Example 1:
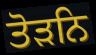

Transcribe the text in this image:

ਤੋੜਨਿ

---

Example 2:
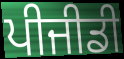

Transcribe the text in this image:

ਪੀਜੀਡੀ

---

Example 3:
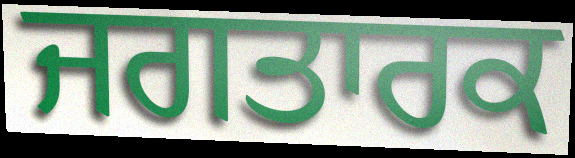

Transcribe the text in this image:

ਜਗਤਾਰਕ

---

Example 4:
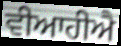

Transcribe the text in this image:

ਵੀਆਹੀਐ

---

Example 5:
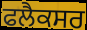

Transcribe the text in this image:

ਫਲੈਕਸਰ